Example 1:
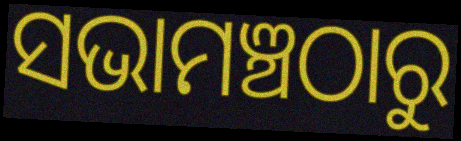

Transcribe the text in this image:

ସଭାମଞ୍ଚଠାରୁ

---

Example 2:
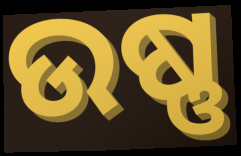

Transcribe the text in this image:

ଉଷ୍ଣ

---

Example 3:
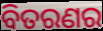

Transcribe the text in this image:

ବିତରଣର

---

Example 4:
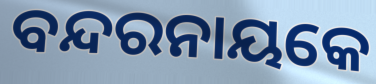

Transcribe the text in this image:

ବନ୍ଦରନାୟକେ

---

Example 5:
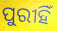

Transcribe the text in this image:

ପୁରୀହିଁ